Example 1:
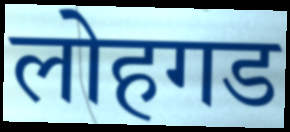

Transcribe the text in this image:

लोहगड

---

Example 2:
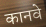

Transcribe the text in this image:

कानवे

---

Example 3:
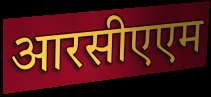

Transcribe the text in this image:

आरसीएएम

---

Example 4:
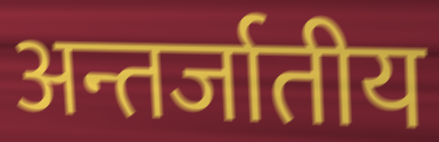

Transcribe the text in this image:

अन्तर्जातीय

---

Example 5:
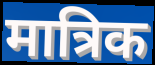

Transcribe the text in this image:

मात्रिक